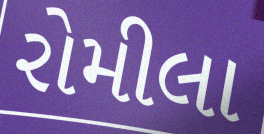
રોમીલા